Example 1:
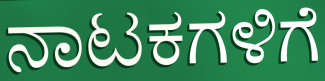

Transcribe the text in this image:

ನಾಟಕಗಳಿಗೆ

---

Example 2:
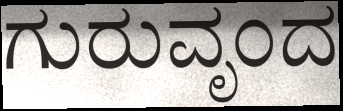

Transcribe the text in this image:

ಗುರುವೃಂದ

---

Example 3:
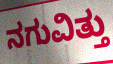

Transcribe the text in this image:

ನಗುವಿತ್ತು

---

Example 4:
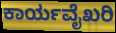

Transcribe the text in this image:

ಕಾರ್ಯವೈಖರಿ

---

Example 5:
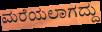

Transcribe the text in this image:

ಮರೆಯಲಾಗದ್ದು